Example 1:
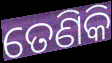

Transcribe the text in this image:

ତେଣିକି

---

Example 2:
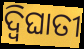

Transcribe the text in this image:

ଦ୍ବିଘାତୀ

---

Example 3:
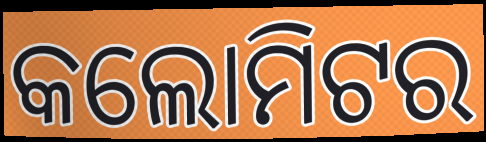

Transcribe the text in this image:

କଲୋମିଟର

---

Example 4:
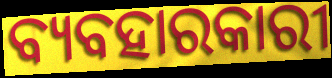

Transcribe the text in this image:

ବ୍ୟବହାରକାରୀ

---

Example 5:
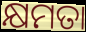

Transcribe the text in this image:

କ୍ଷମତା